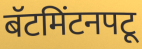
बॅटमिंटनपटू